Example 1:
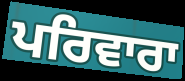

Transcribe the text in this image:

ਪਰਿਵਾਰਾ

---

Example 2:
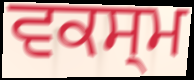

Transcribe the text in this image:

ਵਕਸ੍ਮ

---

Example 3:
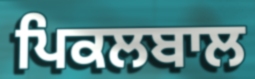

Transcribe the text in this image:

ਪਿਕਲਬਾਲ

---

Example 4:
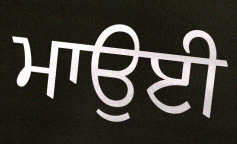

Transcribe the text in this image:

ਮਾਉਈ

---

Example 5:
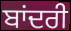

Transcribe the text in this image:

ਬਾਂਦਰੀ